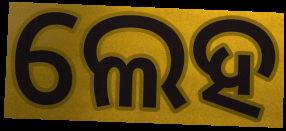
ଲେହ